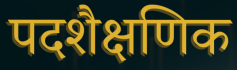
पदशैक्षणिक